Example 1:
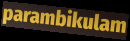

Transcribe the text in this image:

parambikulam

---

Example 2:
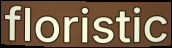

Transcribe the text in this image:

floristic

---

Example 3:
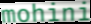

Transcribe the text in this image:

mohini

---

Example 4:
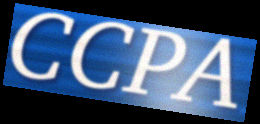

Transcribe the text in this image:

CCPA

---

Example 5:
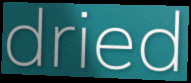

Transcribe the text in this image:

dried